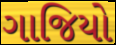
ગાજિયો